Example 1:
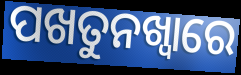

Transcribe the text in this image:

ପଖତୁନଖ୍ୱାରେ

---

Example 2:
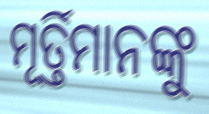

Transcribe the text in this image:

ମୂର୍ତ୍ତିମାନଙ୍କୁ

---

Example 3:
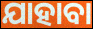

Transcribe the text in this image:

ଯାହାବା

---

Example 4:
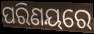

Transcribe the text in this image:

ପରିଣୟରେ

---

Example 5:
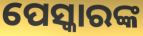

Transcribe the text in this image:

ପେସ୍କାରଙ୍କ